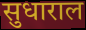
सुधाराल